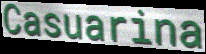
Casuarina